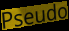
Pseudo